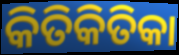
କିତିକିତିକା